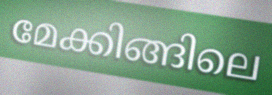
മേക്കിങ്ങിലെ